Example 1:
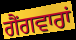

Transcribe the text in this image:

ਗੈਂਗਵਾਰਾਂ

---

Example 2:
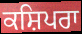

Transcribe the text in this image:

ਕਸ਼ਿਪਰਾ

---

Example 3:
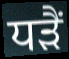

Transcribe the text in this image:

ਧੜੈਂ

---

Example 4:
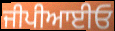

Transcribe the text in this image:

ਜੀਪੀਆਈਓ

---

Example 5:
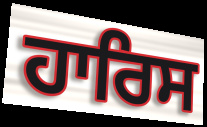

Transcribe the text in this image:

ਹਾਰਿਸ